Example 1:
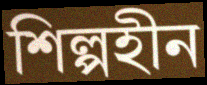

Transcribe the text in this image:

শিল্পহীন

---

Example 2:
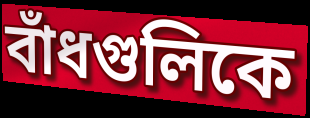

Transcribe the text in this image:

বাঁধগুলিকে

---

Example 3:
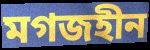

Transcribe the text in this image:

মগজহীন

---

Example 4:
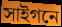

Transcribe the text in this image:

সাইগনে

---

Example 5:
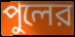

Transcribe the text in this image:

পুলের